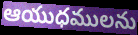
ఆయుధములను